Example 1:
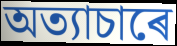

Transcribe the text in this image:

অত্যাচাৰে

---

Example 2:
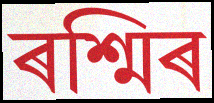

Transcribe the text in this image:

ৰশ্মিৰ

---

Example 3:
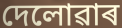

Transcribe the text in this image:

দেলোৱাৰ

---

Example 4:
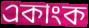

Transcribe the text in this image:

একাংক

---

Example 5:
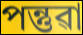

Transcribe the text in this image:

পন্তুৱা